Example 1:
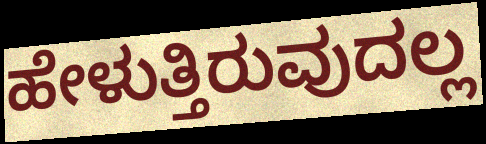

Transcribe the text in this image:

ಹೇಳುತ್ತಿರುವುದಲ್ಲ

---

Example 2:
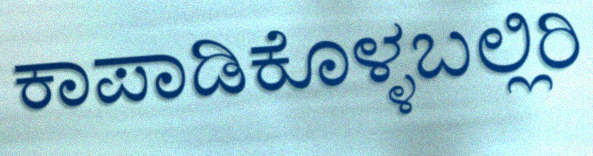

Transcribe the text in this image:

ಕಾಪಾಡಿಕೊಳ್ಳಬಲ್ಲಿರಿ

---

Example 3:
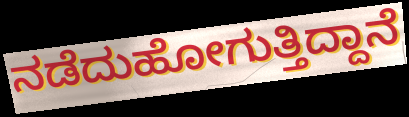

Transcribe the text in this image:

ನಡೆದುಹೋಗುತ್ತಿದ್ದಾನೆ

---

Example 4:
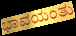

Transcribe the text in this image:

ಭಾವಯಂತು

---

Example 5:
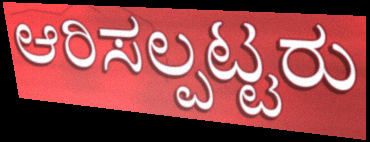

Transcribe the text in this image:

ಆರಿಸಲ್ಪಟ್ಟರು